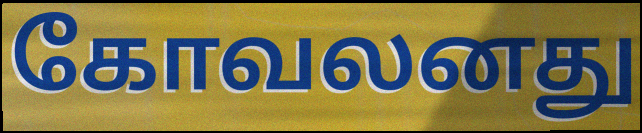
கோவலனது